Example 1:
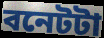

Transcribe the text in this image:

বনেটটা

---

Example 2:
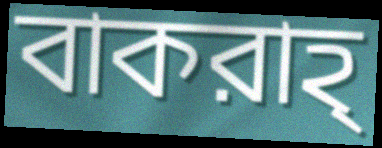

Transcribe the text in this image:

বাকরাহ্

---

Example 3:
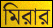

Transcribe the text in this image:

মিরার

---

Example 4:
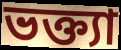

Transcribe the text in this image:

ভক্ত্যা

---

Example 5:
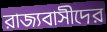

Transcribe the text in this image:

রাজ্যবাসীদের